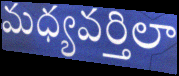
మధ్యవర్తిలా